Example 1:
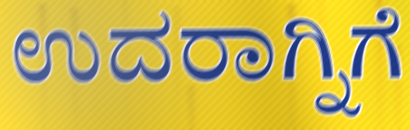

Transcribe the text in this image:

ಉದರಾಗ್ನಿಗೆ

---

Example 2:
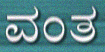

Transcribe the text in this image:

ವಂತ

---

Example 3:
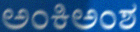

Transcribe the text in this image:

ಅಂಕಿಅಂಶ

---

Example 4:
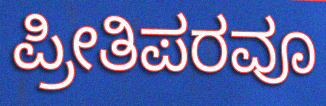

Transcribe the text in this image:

ಪ್ರೀತಿಪರವೂ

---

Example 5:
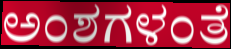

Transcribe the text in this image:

ಅಂಶಗಳಂತೆ